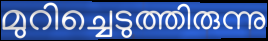
മുറിച്ചെടുത്തിരുന്നു